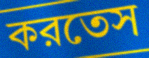
করতেস